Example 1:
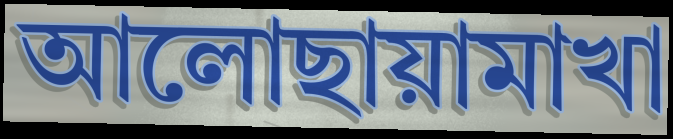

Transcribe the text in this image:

আলোছায়ামাখা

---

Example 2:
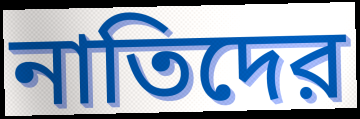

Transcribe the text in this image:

নাতিদের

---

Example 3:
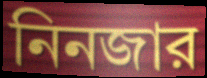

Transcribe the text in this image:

নিনজার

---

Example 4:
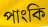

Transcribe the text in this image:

পাংকি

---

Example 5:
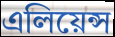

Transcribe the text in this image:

এলিয়েন্স